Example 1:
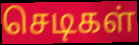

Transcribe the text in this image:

செடிகள்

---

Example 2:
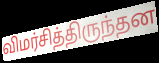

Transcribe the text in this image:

விமர்சித்திருந்தன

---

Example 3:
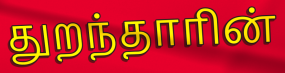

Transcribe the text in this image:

துறந்தாரின்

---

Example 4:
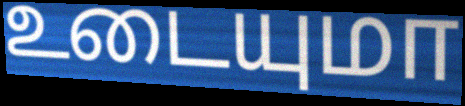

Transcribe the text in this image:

உடையுமா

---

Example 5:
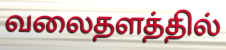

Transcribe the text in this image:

வலைதளத்தில்